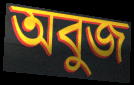
অবুজ